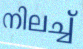
നിലച്ച്